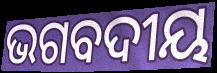
ଭଗବଦୀୟ